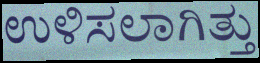
ಉಳಿಸಲಾಗಿತ್ತು